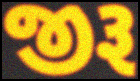
જીરૂ